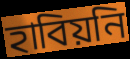
হাবিয়নি